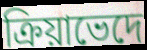
ক্রিয়াভেদে